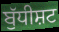
ਬੁੱਧੀਸ਼ਟ